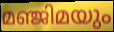
മഞ്ജിമയും